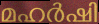
മഹർഷി